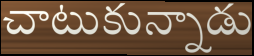
చాటుకున్నాడు